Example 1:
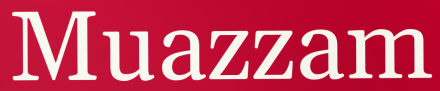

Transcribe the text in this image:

Muazzam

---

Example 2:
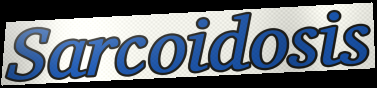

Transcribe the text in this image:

Sarcoidosis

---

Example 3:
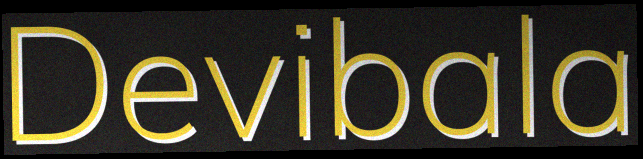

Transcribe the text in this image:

Devibala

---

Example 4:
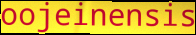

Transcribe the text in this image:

oojeinensis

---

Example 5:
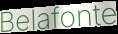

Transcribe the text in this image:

Belafonte